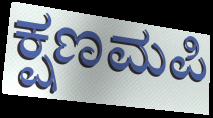
ಕ್ಷಣಮಪಿ